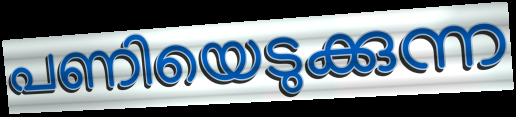
പണിയെടുക്കുന്ന